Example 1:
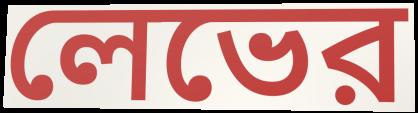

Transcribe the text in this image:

লেভের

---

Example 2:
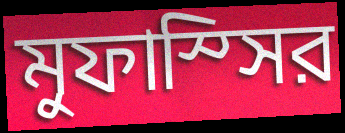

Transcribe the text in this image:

মুফাস্সির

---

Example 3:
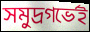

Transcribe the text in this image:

সমুদ্রগর্ভেই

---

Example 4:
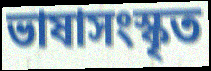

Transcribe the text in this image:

ভাষাসংস্কৃত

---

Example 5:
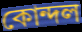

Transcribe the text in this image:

কোন্দল